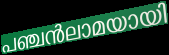
പഞ്ചൻലാമയായി